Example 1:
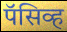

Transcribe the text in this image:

पॅसिव्ह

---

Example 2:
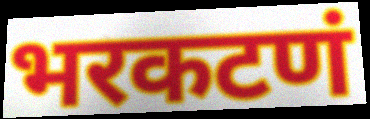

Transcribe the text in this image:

भरकटणं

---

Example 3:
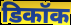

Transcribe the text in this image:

डिकॉक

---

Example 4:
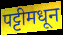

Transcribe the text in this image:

पट्टीमधून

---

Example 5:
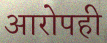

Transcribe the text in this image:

आरोपही